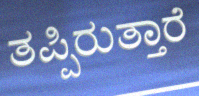
ತಪ್ಪಿರುತ್ತಾರೆ